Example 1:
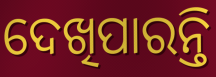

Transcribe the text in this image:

ଦେଖିପାରନ୍ତି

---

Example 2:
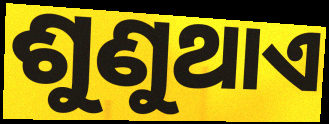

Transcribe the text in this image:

ଶୁଣୁଥାଏ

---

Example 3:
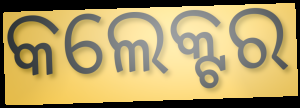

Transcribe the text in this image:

କଲେକ୍ଟର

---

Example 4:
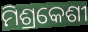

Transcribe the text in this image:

ମିଶ୍ରକେଶୀ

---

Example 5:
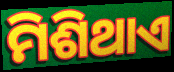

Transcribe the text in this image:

ମିଶିଥାଏ